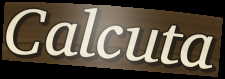
Calcuta